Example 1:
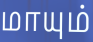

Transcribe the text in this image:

மாயும்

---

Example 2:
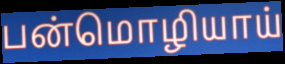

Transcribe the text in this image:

பன்மொழியாய்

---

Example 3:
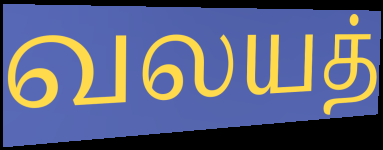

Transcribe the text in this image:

வலயத்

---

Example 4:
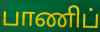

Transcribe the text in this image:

பாணிப்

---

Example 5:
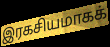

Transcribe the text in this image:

இரகசியமாகக்